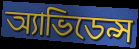
অ্যাভিডেন্স